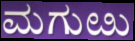
ಮಗುೞು